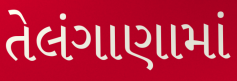
તેલંગાણામાં